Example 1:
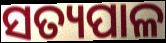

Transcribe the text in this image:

ସତ୍ୟପାଳ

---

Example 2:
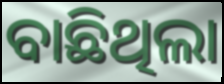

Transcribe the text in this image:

ବାଛିଥିଲା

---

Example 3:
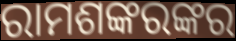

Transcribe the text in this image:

ରାମଶଙ୍କରଙ୍କର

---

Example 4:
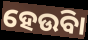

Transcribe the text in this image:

ହେଉିବା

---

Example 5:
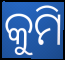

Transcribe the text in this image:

କୁମି